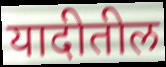
यादीतील